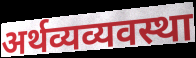
अर्थव्यव्यवस्था